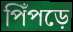
পিঁপড়ে